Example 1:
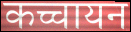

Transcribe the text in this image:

कच्चायन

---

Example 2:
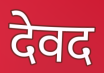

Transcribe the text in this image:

देवद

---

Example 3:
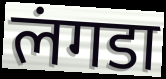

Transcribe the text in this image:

लंगडा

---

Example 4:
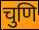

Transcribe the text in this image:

चुणि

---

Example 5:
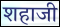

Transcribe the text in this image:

शहाजी